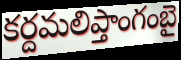
కర్దమలిప్తాంగంబై